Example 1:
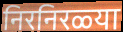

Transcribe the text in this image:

निरनिरळ्या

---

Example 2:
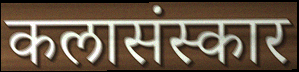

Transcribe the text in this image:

कलासंस्कार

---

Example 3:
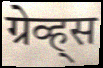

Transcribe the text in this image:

ग्रेव्ह्स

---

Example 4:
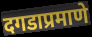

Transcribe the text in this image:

दगडाप्रमाणे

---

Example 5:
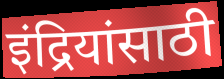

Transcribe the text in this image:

इंद्रियांसाठी